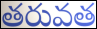
తరువత